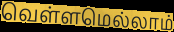
வெள்ளமெல்லாம்